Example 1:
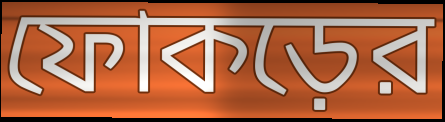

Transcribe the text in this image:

ফোকড়ের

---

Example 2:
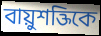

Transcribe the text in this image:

বায়ুশক্তিকে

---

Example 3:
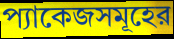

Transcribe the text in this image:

প্যাকেজসমূহের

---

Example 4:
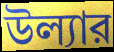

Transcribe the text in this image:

উল্যার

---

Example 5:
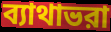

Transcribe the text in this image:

ব্যাথাভরা